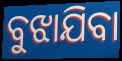
ବୁଝାଯିବା